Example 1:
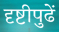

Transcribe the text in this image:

दृष्टीपुढें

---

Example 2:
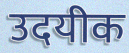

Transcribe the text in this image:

उदयीक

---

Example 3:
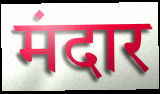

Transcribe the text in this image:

मंदार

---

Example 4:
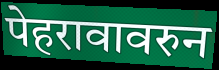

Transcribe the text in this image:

पेहरावावरुन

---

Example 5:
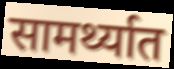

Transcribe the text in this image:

सामर्थ्यात